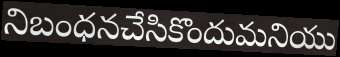
నిబంధనచేసికొందుమనియు